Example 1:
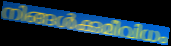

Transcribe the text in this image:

നിങ്ങൾക്കുമീവിധം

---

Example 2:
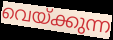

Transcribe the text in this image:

വെയ്ക്കുന്ന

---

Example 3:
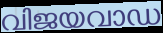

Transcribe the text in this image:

വിജയവാഡ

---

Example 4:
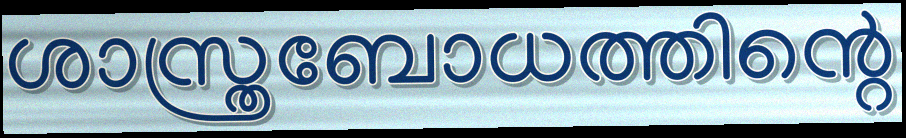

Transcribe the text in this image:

ശാസ്ത്രബോധത്തിന്റെ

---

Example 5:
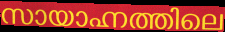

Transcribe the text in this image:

സായാഹ്നത്തിലെ